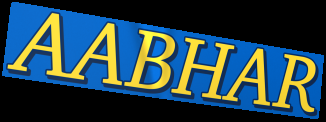
AABHAR